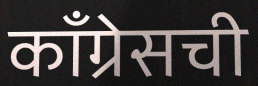
काँग्रेसची